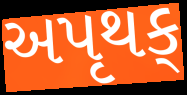
અપૃથક્